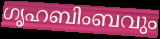
ഗൃഹബിംബവും